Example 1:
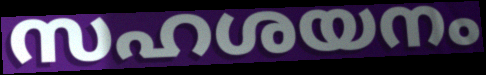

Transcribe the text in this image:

സഹശയനം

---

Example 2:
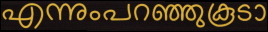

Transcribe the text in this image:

എന്നുംപറഞ്ഞുകൂടാ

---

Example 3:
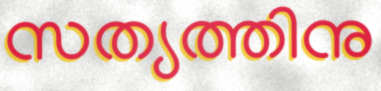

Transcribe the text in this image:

സത്യത്തിനു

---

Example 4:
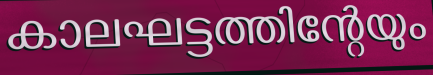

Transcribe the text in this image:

കാലഘട്ടത്തിന്റേയും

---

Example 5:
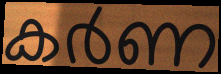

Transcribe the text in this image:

കർണ